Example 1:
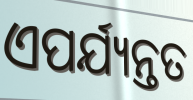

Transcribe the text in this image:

ଏପର୍ଯ୍ୟନ୍ତତ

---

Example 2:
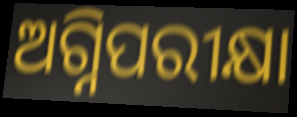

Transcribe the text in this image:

ଅଗ୍ନିପରୀକ୍ଷା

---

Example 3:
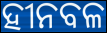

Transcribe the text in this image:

ହୀନବଳ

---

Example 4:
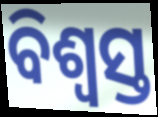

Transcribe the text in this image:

ବିଶ୍ବସ୍ତ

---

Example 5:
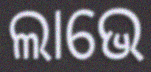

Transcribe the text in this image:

ଲାଭେ